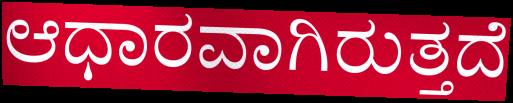
ಆಧಾರವಾಗಿರುತ್ತದೆ